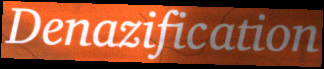
Denazification